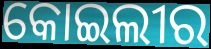
କୋଇଲୀର